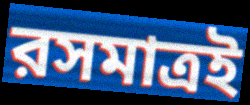
রসমাত্রই